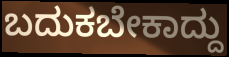
ಬದುಕಬೇಕಾದ್ದು